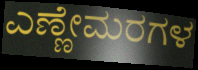
ಎಣ್ಣೇಮರಗಳ